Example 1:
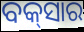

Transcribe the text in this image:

ବକ୍‌ସାର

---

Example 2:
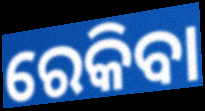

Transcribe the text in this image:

ରେକିବା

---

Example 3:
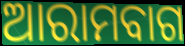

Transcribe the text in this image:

ଆରାମବାଗ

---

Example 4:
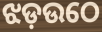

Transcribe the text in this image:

ଝଡ଼ଉଠେ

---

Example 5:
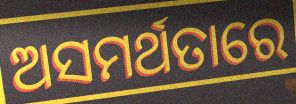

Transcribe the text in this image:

ଅସମର୍ଥତାରେ